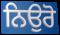
ਨਿਉਰੋ